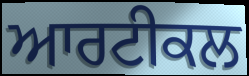
ਆਰਟੀਕਲ